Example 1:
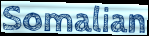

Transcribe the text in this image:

Somalian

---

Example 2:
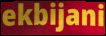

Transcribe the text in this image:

ekbijani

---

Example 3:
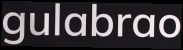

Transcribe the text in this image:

gulabrao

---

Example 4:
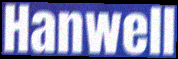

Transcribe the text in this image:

Hanwell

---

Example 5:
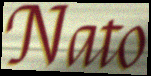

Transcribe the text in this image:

Nato